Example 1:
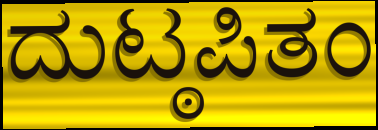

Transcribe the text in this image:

ದುಟ್ಠಪಿತಂ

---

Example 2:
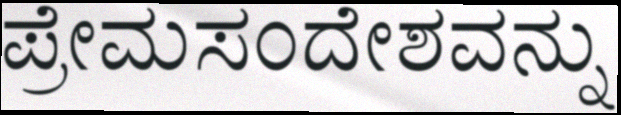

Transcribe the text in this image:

ಪ್ರೇಮಸಂದೇಶವನ್ನು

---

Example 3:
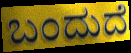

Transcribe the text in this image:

ಬಂದುದೆ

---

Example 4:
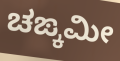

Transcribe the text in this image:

ಚಙ್ಕಮೀ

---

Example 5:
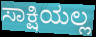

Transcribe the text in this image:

ಸಾಕ್ಷಿಯಲ್ಲ